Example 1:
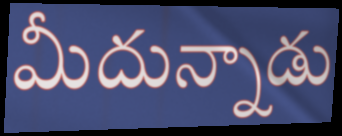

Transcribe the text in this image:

మీదున్నాడు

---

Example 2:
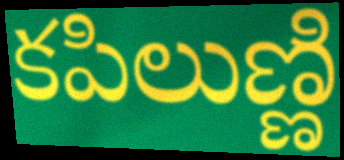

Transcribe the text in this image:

కపిలుణ్ణి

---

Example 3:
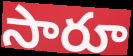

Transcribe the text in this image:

సారూ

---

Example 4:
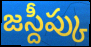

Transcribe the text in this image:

జస్దీప్కు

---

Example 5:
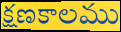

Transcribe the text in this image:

క్షణకాలము